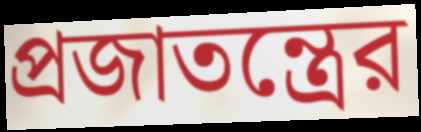
প্রজাতন্ত্রের